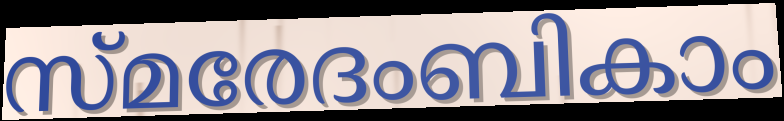
സ്മരേദംബികാം